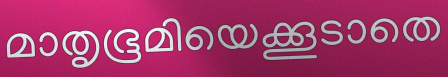
മാതൃഭൂമിയെക്കൂടാതെ